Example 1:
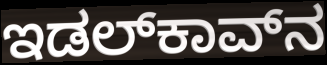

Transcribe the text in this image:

ಇಡಲ್‌ಕಾವ್‌ನ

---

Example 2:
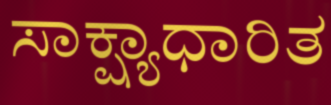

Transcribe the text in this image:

ಸಾಕ್ಷ್ಯಾಧಾರಿತ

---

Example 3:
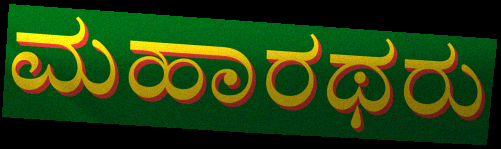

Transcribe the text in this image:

ಮಹಾರಥರು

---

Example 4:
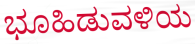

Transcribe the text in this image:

ಭೂಹಿಡುವಳಿಯ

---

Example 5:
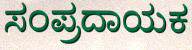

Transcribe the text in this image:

ಸಂಪ್ರದಾಯಕ